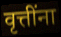
वृत्तींना